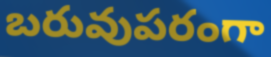
బరువుపరంగా